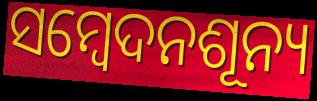
ସମ୍ବେଦନଶୂନ୍ୟ